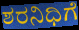
ಶರನಿಧಿಗೆ